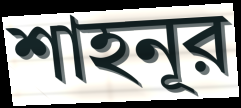
শাহনূর